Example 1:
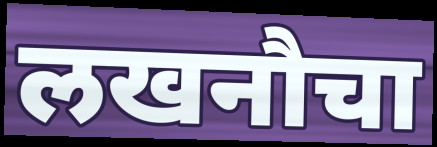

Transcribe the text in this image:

लखनौचा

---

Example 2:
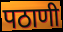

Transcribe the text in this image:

पठाणी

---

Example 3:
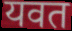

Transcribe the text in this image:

यवत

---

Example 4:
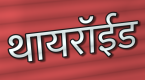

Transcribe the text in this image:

थायरॉईड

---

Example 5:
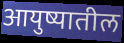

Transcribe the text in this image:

आयुष्यातील